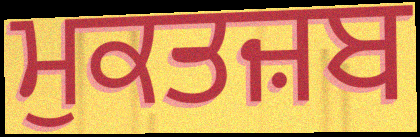
ਮੁਕਤਜ਼ਬ